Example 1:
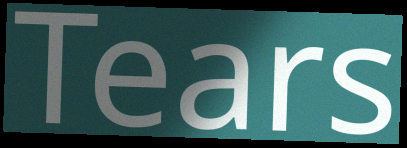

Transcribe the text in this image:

Tears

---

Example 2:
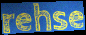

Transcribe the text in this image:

rehse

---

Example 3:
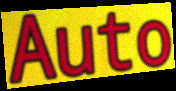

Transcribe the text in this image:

Auto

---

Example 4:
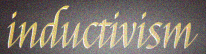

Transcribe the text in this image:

inductivism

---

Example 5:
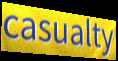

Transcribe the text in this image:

casualty